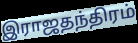
இராஜதந்திரம்